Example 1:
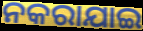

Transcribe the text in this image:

ନକରାଯାଇ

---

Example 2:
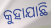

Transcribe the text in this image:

କୁହାଯାଛି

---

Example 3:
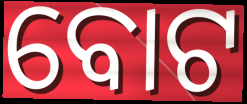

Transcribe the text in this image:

ବୋଟ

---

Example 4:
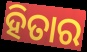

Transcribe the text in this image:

ହିତାର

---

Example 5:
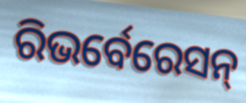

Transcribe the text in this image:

ରିଭର୍ବେରେସନ୍